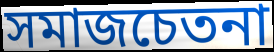
সমাজচেতনা